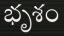
భృశం